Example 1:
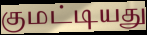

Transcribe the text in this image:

குமட்டியது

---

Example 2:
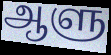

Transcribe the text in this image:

ஆளு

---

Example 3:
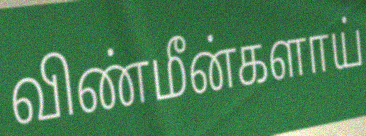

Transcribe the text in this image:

விண்மீன்களாய்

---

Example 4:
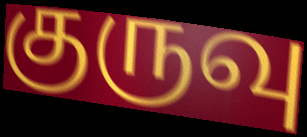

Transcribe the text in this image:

குருவு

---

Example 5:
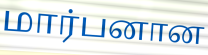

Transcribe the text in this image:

மார்பனான